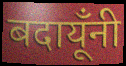
बदायूँनी